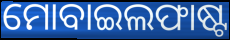
ମୋବାଇଲଫାଷ୍ଟ